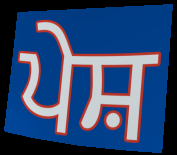
ਪੇਸ਼